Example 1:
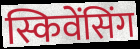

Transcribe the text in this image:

स्किवेंसिंग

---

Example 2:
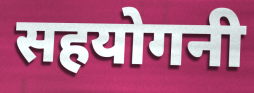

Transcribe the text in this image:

सहयोगनी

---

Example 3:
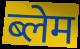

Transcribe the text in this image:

ब्लेम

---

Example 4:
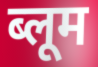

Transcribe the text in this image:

ब्लूम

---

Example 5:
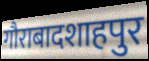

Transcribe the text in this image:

गौराबादशाहपुर